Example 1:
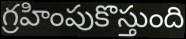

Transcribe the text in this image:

గ్రహింపుకొస్తుంది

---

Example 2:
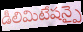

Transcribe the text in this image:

డీలిమిటేషన్పై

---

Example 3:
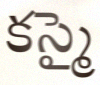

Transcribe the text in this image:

కస్మై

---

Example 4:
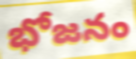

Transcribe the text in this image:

భోజనం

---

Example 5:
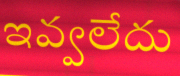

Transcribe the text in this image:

ఇవ్వలేదు